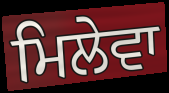
ਮਿਲੇਵਾ